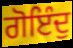
ਗੋਇੰਦੁ